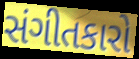
સંગીતકારો